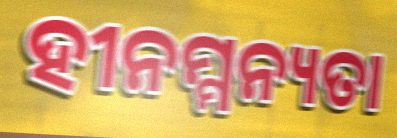
ହୀନମ୍ମନ୍ୟତା